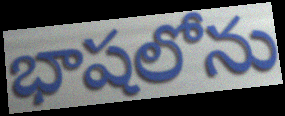
భాషలోను